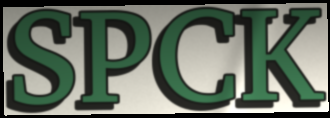
SPCK